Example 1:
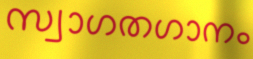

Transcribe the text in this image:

സ്വാഗതഗാനം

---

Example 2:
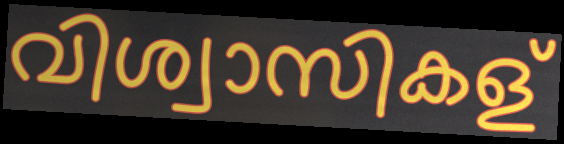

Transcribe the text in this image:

വിശ്വാസികള്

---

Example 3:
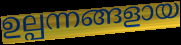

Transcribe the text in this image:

ഉല്പന്നങ്ങളായ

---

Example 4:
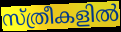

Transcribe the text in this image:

സ്ത്രീകളിൽ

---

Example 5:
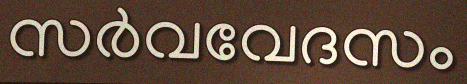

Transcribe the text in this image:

സർവവേദസം